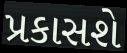
પ્રકાસશે